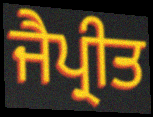
ਜੈਪ੍ਰੀਤ